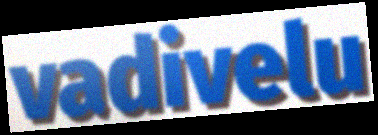
vadivelu